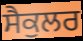
ਸੈਕੁਲਰ